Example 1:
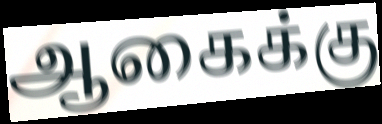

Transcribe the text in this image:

ஆகைக்கு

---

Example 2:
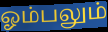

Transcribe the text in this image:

ஓம்பலும்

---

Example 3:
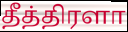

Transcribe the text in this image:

தீத்திரளா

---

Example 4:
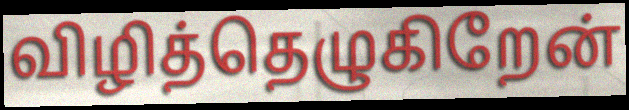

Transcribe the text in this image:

விழித்தெழுகிறேன்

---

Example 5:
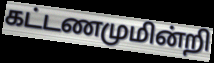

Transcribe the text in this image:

கட்டணமுமின்றி